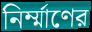
নির্ম্মাণের